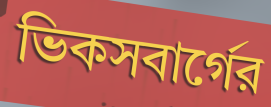
ভিকসবার্গের